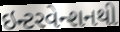
ઇન્ટરવેન્શનથી